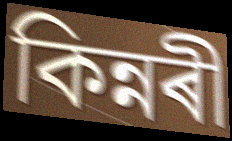
কিন্নৰী